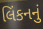
લિંકનનું